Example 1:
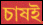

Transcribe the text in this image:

চাষই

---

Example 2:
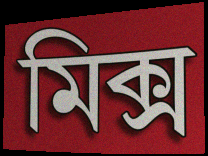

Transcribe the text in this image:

মিক্স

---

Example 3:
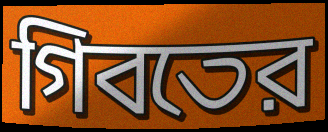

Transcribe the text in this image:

গিবতের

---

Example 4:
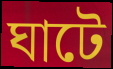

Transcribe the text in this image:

ঘাটে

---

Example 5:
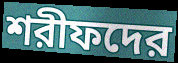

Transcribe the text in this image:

শরীফদের